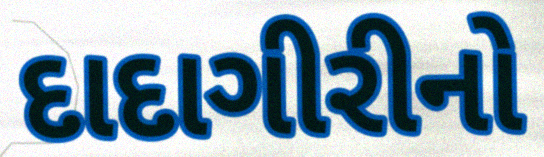
દાદાગીરીનો